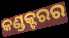
କଣ୍ଡକ୍ଟରର